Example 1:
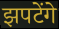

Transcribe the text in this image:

झपटेंगे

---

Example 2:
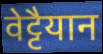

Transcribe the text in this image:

वेट्टैयान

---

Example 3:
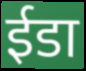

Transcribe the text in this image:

ईडा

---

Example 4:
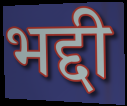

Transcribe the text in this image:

भद्दी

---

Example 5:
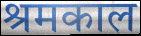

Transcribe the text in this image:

श्रमकाल